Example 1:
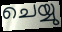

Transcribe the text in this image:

ചെയ്യു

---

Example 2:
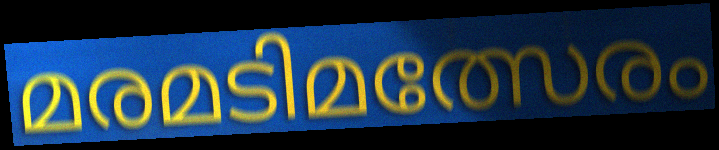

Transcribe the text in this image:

മരമടിമത്സേരം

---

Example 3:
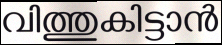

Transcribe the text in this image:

വിത്തുകിട്ടാൻ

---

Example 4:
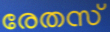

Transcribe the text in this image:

രേതസ്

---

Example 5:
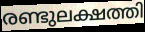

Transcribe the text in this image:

രണ്ടുലക്ഷത്തി